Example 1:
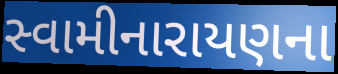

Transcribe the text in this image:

સ્વામીનારાયણના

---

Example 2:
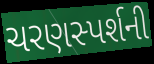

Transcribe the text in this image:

ચરણસ્પર્શની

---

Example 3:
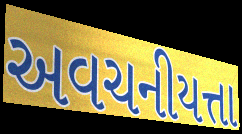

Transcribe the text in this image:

અવચનીયત્તા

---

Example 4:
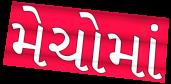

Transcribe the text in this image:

મેચોમાં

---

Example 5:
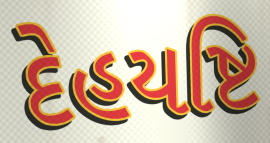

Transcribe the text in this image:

દેહયષ્ટિ